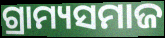
ଗ୍ରାମ୍ୟସମାଜ